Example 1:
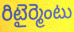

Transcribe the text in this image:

రిటైర్మెంటు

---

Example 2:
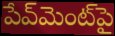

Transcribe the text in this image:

పేవ్‌మెంట్‌పై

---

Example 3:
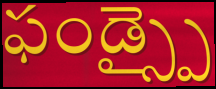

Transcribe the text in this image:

ఫండ్స్పై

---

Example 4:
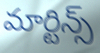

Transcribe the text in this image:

మార్టిన్స్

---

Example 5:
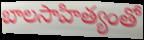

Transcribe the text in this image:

బాలసాహిత్యంతో